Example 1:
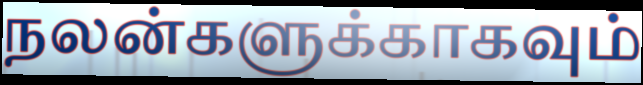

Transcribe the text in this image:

நலன்களுக்காகவும்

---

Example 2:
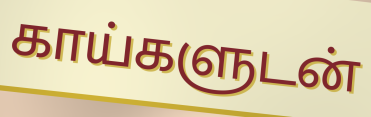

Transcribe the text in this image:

காய்களுடன்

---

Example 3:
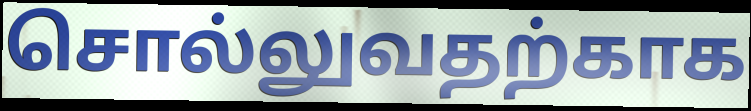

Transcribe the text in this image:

சொல்லுவதற்காக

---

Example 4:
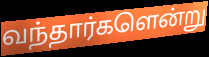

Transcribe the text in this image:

வந்தார்களென்று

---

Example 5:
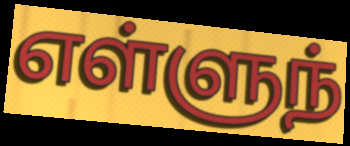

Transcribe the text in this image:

எள்ளுந்